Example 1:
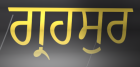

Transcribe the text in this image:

ਗ੍ਰਹਸੁਰ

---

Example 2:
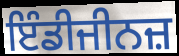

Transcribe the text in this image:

ਇੰਡੀਜੀਨਜ਼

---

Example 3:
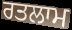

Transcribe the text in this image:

ਰਤਲਾਮ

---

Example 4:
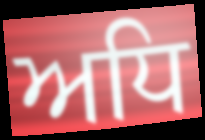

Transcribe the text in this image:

ਅਧਿ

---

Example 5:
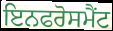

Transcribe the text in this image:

ਇਨਫਰੋਸਮੈਂਟ